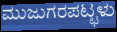
ಮುಜುಗರಪಟ್ಟಳು